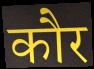
कौर